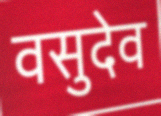
वसुदेव